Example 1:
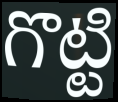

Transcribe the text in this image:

గొట్టి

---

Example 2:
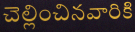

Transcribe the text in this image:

చెల్లించినవారికి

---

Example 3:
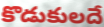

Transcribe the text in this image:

కొడుకులదే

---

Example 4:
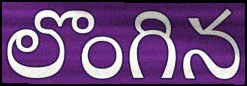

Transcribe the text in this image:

లొంగిన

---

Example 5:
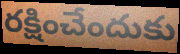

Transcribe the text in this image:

రక్షించేందుకు